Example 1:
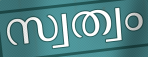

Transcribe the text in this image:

സ്വത്വം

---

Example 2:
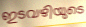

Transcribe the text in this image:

ഇടവഴിയുടെ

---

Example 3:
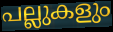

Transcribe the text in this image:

പല്ലുകളും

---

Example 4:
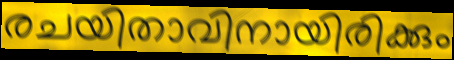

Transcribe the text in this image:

രചയിതാവിനായിരിക്കും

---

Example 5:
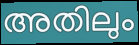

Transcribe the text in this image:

അതിലും